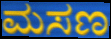
ಮಸಣ